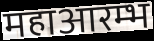
महाआरम्भ